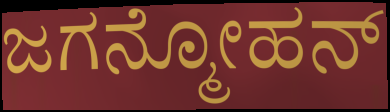
ಜಗನ್ಮೋಹನ್